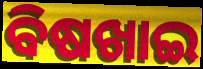
ବିଷଖାଇ